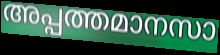
അപ്പത്തമാനസാ